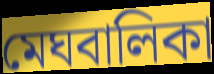
মেঘবালিকা